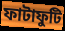
ফাটাফুটি